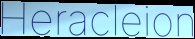
Heracleion